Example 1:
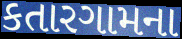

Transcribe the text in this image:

કતારગામના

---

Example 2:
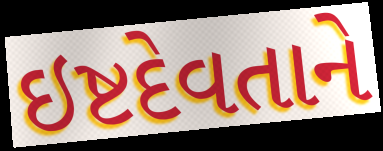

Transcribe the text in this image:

ઇષ્ટદેવતાને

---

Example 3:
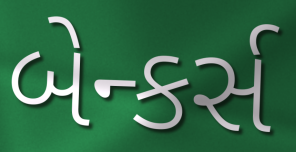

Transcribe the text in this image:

બેન્કર્સ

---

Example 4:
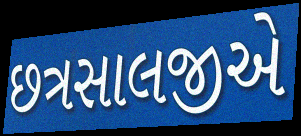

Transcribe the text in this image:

છત્રસાલજીએ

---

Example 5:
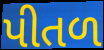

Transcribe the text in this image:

પીતળ